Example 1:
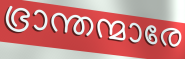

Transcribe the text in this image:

ഭ്രാന്തന്മാരേ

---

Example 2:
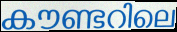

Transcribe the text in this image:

കൗണ്ടറിലെ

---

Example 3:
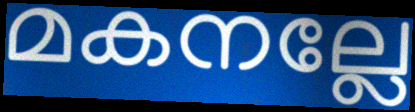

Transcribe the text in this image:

മകനല്ലേ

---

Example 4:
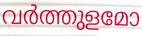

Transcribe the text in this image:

വർത്തുളമോ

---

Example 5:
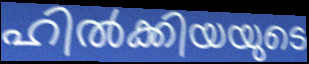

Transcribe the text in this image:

ഹിൽക്കിയയുടെ